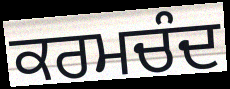
ਕਰਮਚੰਦ